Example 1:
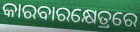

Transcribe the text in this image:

କାରବାରକ୍ଷେତ୍ରରେ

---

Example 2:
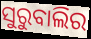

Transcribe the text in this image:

ସୁରୁବାଲିର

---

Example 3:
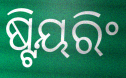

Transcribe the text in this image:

ଷ୍ଟିୟରିଂ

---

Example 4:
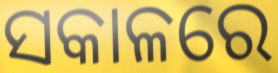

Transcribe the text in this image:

ସକାଳରେ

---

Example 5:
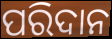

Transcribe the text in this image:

ପରିଦାନ